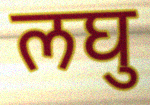
लघु